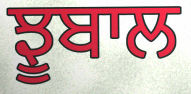
ਝੂਬਾਲ